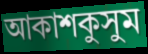
আকাশকুসুম